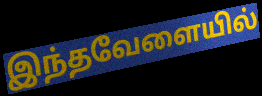
இந்தவேளையில்